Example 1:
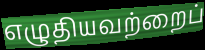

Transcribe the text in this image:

எழுதியவற்றைப்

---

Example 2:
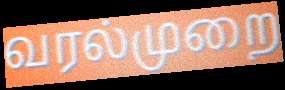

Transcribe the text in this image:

வரல்முறை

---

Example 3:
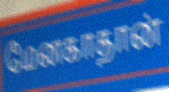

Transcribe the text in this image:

மேனகாதான்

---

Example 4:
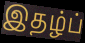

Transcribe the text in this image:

இதழ்ப்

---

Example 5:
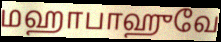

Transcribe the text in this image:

மஹாபாஹுவே